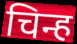
चिन्ह